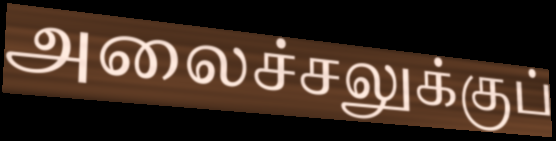
அலைச்சலுக்குப்